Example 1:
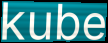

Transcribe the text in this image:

kube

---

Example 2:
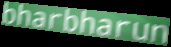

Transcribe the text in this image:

bharbharun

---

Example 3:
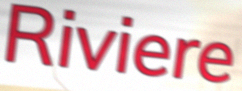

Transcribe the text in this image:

Riviere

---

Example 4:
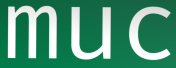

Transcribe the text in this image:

muc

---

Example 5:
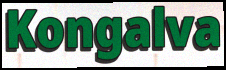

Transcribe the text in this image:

Kongalva